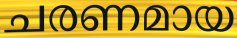
ചരണമായ